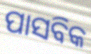
ପାସବିକ